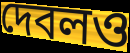
দেবলও